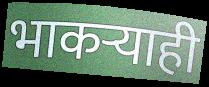
भाकऱ्याही